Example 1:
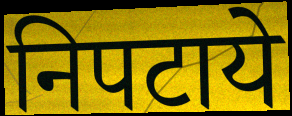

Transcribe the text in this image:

निपटाये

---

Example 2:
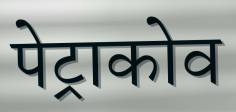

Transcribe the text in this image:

पेट्राकोव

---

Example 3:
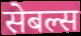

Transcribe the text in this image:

सेबल्स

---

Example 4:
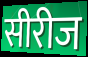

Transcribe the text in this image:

सीरीज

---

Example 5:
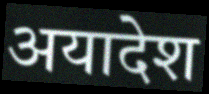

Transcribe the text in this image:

अयादेश